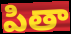
పితా